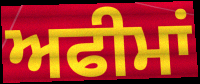
ਅਫੀਮਾਂ